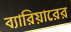
ব্যারিয়ারের